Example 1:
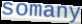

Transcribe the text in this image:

somany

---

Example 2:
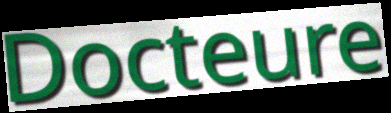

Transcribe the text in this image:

Docteure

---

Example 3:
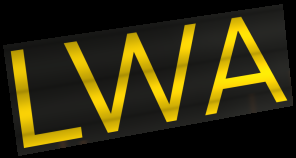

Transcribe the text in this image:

LWA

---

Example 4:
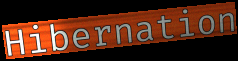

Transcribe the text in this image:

Hibernation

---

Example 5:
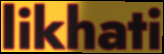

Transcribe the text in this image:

likhati